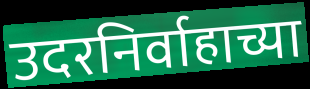
उदरनिर्वाहाच्या